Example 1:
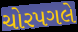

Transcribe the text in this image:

ચોરપગલે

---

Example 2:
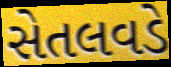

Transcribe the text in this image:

સેતલવડે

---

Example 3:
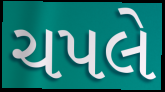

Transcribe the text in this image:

ચપલે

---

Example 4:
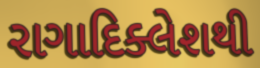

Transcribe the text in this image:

રાગાદિક્લેશથી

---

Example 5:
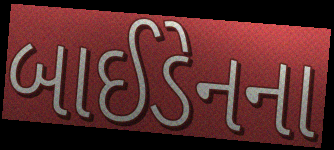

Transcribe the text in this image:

બાઈડેનના